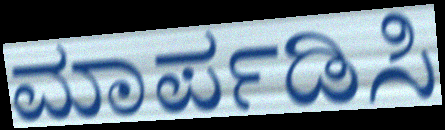
ಮಾರ್ಪಡಿಸಿ